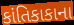
કાંતિકાકાના